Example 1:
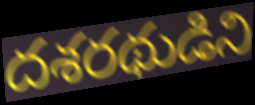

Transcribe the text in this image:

దశరథుడిని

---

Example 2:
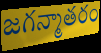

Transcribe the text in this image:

జగన్మాతరం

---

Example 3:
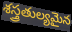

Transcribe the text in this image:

శస్త్రతుల్యమైన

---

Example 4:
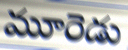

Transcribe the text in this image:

మూరెడు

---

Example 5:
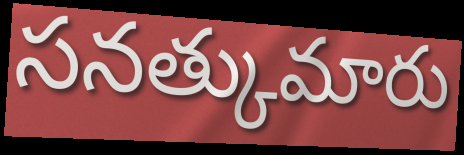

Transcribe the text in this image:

సనత్కుమారు